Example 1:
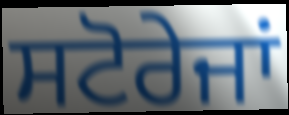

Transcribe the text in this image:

ਸਟੋਰੇਜਾਂ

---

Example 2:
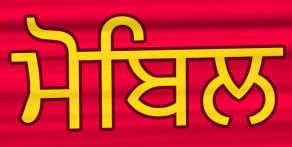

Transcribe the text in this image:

ਮੋਬਿਲ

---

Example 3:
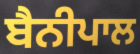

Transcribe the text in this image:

ਬੈਨੀਪਾਲ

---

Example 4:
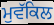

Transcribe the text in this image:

ਮੁਵੱਕਿਲ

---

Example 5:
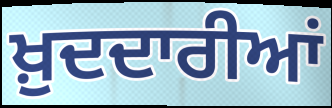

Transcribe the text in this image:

ਖ਼ੁਦਦਾਰੀਆਂ